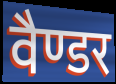
वैण्डर